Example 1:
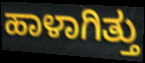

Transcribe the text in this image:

ಹಾಳಾಗಿತ್ತು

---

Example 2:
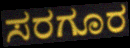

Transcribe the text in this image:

ಸರಗೂರ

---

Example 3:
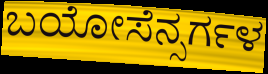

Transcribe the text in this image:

ಬಯೋಸೆನ್ಸರ್ಗಳ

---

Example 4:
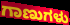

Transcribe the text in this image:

ಗಾಣುಗಳು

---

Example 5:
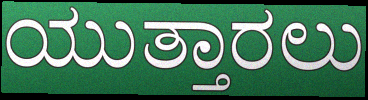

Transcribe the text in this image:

ಯುತ್ತಾರಲು